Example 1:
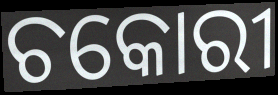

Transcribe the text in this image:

ଚକୋରୀ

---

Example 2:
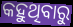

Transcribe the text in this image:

କହୁଥିବାରୁ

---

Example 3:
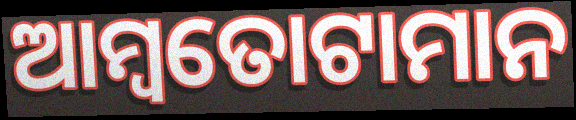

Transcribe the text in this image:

ଆମ୍ବତୋଟାମାନ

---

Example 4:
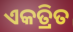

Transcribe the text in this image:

ଏକତ୍ରିତ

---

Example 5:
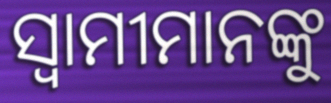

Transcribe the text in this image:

ସ୍ବାମୀମାନଙ୍କୁ